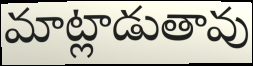
మాట్లాడుతావు